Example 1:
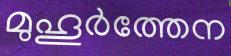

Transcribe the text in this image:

മുഹൂർത്തേന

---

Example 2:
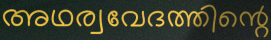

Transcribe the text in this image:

അഥര്വവേദത്തിന്റെ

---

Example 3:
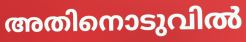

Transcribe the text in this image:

അതിനൊടുവിൽ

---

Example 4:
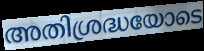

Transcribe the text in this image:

അതിശ്രദ്ധയോടെ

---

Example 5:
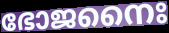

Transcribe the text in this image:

ഭോജനൈഃ